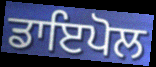
ਡਾਇਪੋਲ